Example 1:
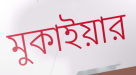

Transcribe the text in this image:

মুকাইয়ার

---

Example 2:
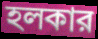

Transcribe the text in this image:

হলকার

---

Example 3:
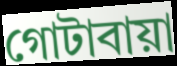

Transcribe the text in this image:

গোটাবায়া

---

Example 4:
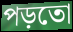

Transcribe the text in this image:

পড়তো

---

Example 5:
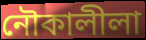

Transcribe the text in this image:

নৌকালীলা